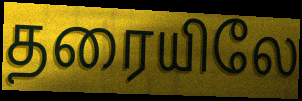
தரையிலே